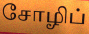
சோழிப்